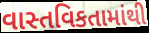
વાસ્તવિકતામાંથી